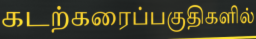
கடற்கரைப்பகுதிகளில்